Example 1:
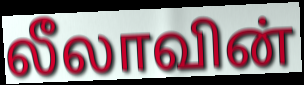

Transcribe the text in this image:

லீலாவின்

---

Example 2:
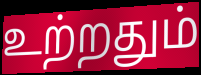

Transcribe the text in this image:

உற்றதும்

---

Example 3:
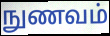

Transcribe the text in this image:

நுணவம்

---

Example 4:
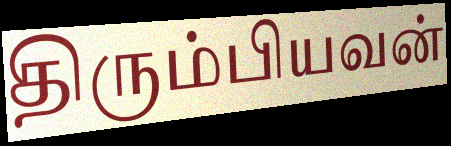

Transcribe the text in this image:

திரும்பியவன்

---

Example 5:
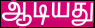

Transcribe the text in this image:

ஆடியது